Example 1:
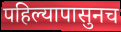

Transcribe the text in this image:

पहिल्यापासुनच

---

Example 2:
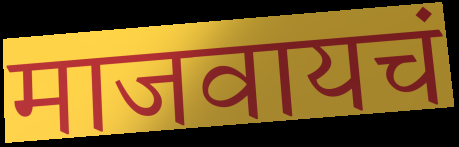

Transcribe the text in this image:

माजवायचं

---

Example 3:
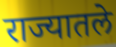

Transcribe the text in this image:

राज्यातले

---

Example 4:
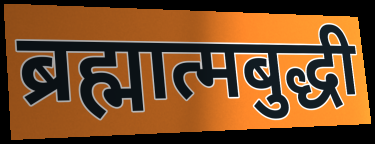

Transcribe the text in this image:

ब्रह्मात्मबुद्धी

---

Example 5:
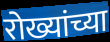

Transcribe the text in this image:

रोख्यांच्या